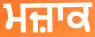
ਮਜ਼ਾਕ